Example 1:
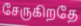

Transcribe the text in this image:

சேருகிறதே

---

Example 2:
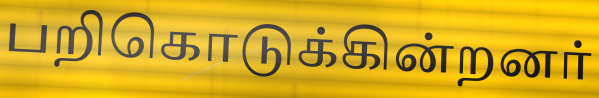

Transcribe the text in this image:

பறிகொடுக்கின்றனர்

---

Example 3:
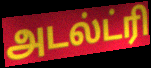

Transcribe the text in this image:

அடல்ட்ரி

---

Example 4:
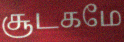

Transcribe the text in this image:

சூடகமே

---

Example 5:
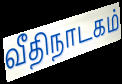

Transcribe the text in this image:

வீதிநாடகம்